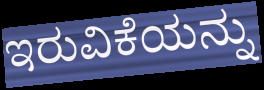
ಇರುವಿಕೆಯನ್ನು